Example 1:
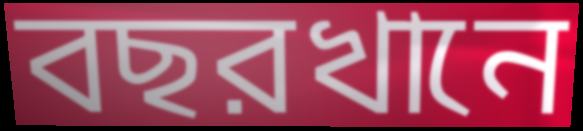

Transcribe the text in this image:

বছরখানে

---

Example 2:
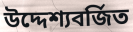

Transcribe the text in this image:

উদ্দেশ্যবর্জিত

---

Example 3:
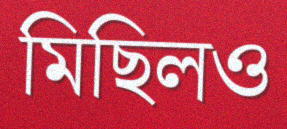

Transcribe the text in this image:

মিছিলও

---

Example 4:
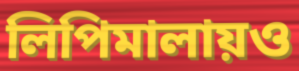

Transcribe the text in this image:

লিপিমালায়ও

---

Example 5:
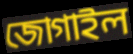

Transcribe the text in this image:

জোগাইল